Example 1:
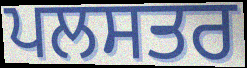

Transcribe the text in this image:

ਪਲਸਤਰ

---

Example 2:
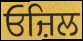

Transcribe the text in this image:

ਓਜ਼ਿਲ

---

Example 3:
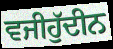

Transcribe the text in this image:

ਵਜੀਹੁੱਦੀਨ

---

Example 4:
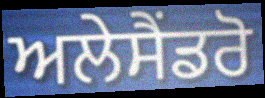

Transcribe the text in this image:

ਅਲੇਸੈਂਡਰੋ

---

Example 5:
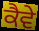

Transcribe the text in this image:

ਕੈਵੇ